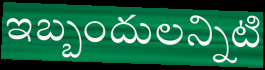
ఇబ్బందులన్నిటి